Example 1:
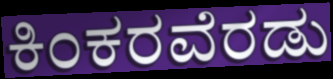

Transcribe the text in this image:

ಕಿಂಕರವೆರಡು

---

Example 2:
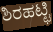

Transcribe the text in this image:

ಶಿರಹಟ್ಟಿ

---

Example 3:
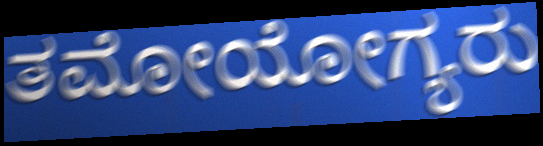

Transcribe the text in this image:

ತಮೋಯೋಗ್ಯರು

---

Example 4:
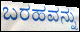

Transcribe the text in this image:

ಬರಹವನ್ನು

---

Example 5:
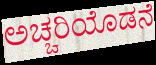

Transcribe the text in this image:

ಅಚ್ಚರಿಯೊಡನೆ